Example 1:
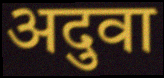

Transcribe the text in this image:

अदुवा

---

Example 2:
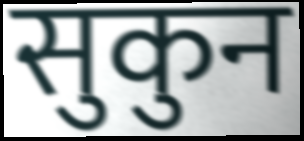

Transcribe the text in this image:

सुकुन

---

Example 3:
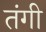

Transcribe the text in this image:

तंगी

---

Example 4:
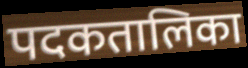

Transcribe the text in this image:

पदकतालिका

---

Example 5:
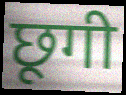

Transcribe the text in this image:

छूगी